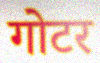
गोटर